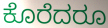
ಕೊರೆದರೂ